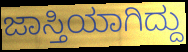
ಜಾಸ್ತಿಯಾಗಿದ್ದು